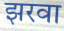
झरवा